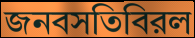
জনবসতিবিরল